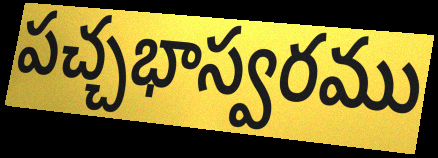
పచ్చభాస్వరము